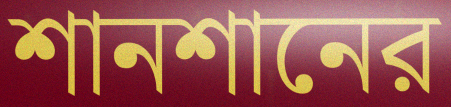
শানশানের